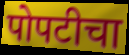
पोपटीचा